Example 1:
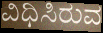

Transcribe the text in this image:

ವಿಧಿಸಿರುವ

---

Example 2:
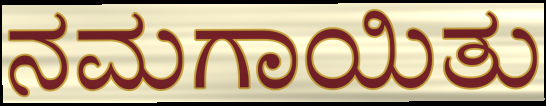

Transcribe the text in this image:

ನಮಗಾಯಿತು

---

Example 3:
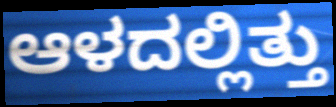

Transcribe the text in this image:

ಆಳದಲ್ಲಿತ್ತು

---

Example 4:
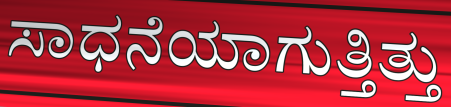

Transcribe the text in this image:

ಸಾಧನೆಯಾಗುತ್ತಿತ್ತು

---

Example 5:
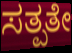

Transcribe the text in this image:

ಸತ್ಪತೇ